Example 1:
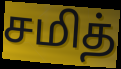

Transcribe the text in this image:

சமித்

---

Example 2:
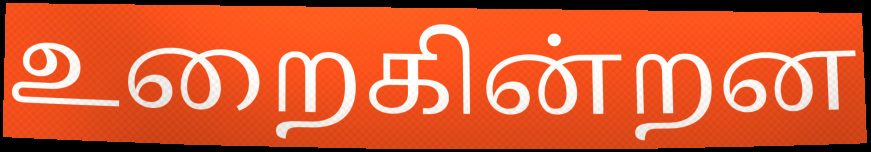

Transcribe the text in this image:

உறைகின்றன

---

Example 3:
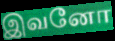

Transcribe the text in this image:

இவனோ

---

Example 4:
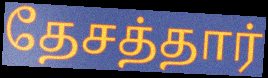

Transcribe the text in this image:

தேசத்தார்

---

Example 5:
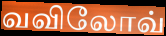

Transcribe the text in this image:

வவிலோவ்